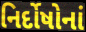
નિર્દોષોનાં